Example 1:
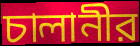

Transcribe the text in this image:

চালানীর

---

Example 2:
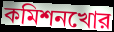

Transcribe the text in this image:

কমিশনখোর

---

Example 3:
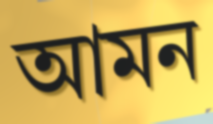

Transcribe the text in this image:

আমন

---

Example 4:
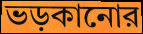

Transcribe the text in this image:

ভড়কানোর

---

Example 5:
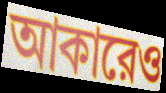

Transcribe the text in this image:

আকারেও